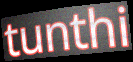
tunthi